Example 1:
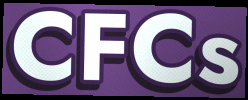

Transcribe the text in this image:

CFCs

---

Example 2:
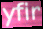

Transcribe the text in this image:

yfir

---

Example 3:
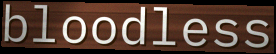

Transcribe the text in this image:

bloodless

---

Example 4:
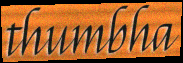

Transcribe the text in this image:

thumbha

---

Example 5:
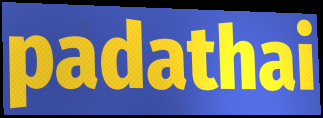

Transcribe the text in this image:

padathai